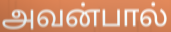
அவன்பால்